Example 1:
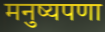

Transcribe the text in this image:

मनुष्यपणा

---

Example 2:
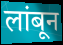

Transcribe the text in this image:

लांबून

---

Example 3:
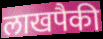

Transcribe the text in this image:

लाखपैकी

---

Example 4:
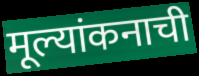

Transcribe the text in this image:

मूल्यांकनाची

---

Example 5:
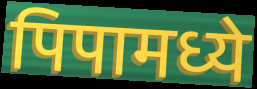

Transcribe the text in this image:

पिपामध्ये